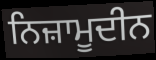
ਨਿਜ਼ਾਮੂਦੀਨ